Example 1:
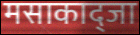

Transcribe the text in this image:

मसाकाद्जा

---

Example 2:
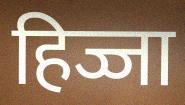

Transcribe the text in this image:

हिज्जा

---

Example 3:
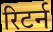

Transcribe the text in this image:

रिटर्न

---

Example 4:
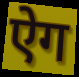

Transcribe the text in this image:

ऐग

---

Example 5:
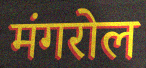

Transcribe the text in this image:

मंगरोल